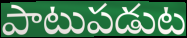
పాటుపడుట